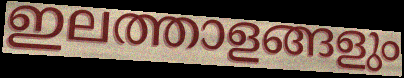
ഇലത്താളങ്ങളും